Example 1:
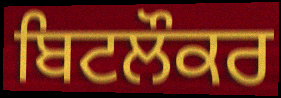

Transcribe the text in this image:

ਬਿਟਲੌਕਰ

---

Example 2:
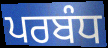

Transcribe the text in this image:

ਪਰਬੰਧ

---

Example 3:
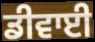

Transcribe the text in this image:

ਡੀਵਾਈ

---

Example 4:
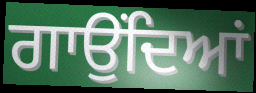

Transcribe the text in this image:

ਗਾਉਂਦਿਆਂ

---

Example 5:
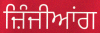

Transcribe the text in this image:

ਜ਼ਿੰਜੀਆਂਗ